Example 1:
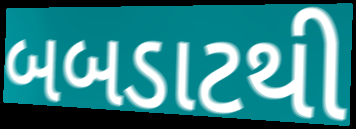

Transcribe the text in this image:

બબડાટથી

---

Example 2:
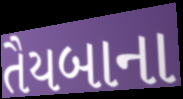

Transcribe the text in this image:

તૈયબાના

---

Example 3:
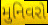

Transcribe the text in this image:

મુનિવરો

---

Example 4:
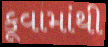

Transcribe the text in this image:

કૂવામાંથી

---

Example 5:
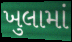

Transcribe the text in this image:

ખુલામાં